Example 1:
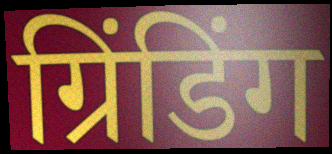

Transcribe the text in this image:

ग्रिंडिंग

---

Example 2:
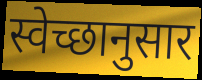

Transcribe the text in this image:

स्वेच्छानुसार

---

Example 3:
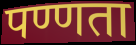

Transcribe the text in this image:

पण्णता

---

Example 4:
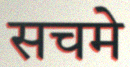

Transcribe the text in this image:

सचमे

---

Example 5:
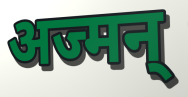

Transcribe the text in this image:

अज्मन्